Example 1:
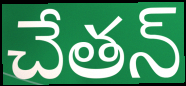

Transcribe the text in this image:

చేతన్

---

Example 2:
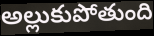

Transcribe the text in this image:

అల్లుకుపోతుంది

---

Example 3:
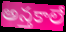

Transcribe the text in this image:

అన్తకాలే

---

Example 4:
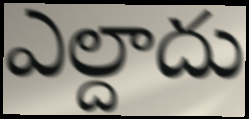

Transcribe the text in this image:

ఎల్దాదు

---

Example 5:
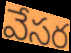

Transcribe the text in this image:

వేసర